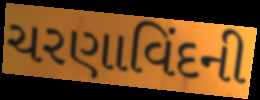
ચરણાવિંદની